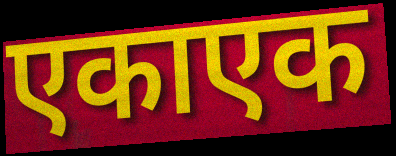
एकाएक